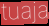
tuaja